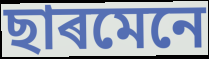
ছাৰমেনে